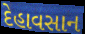
દેહાવસાન